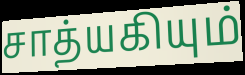
சாத்யகியும்